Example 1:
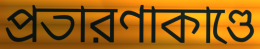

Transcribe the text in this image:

প্রতারণাকাণ্ডে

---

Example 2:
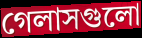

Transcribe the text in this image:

গেলাসগুলো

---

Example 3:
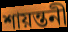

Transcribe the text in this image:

শায়ন্তনী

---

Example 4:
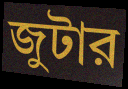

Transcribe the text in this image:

জুটার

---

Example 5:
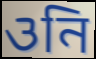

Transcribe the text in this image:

ওনি